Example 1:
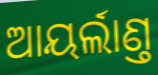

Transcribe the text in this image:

ଆୟର୍ଲାଣ୍ତ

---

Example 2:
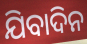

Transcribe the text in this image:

ଯିବାଦିନ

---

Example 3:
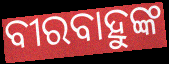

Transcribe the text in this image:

ବୀରବାହୁଙ୍କ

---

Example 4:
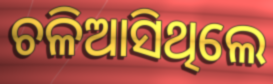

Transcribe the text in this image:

ଚଳିଆସିଥିଲେ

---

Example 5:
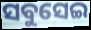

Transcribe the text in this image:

ସବୁସେଇ